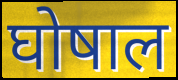
घोषाल